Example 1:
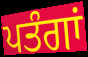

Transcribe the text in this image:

ਪਤੰਗਾਂ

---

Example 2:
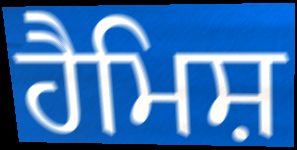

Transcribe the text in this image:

ਹੈਮਿਸ਼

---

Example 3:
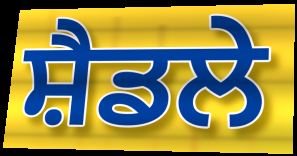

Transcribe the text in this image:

ਸ਼ੈਡਲੇ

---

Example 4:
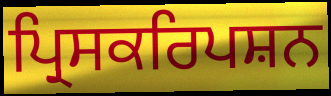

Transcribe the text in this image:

ਪ੍ਰਿਸਕਰਿਪਸ਼ਨ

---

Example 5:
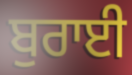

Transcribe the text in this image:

ਬੁਰਾਈ